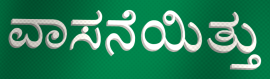
ವಾಸನೆಯಿತ್ತು